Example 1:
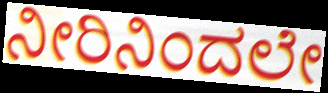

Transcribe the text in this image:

ನೀರಿನಿಂದಲೇ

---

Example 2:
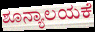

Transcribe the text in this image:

ಶೂನ್ಯಾಲಯಕೆ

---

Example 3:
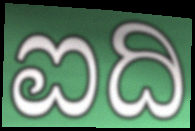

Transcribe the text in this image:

ಐದಿ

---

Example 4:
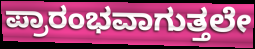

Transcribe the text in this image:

ಪ್ರಾರಂಭವಾಗುತ್ತಲೇ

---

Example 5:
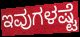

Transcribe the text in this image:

ಇವುಗಳಷ್ಟೆ